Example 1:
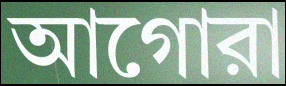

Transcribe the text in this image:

আগোরা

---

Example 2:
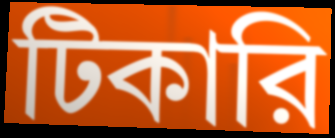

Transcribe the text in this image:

টিকারি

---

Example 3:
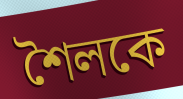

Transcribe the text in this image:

শৈলকে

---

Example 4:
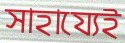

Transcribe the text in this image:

সাহায্যেই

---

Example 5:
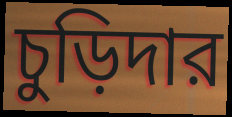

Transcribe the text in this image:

চুড়িদার